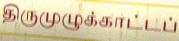
திருமுழுக்காட்டப்